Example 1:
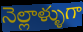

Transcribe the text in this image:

నెల్లాళ్ళుగా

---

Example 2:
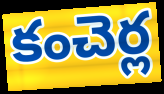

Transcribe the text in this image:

కంచెర్ల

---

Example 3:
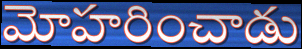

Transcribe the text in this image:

మోహరించాడు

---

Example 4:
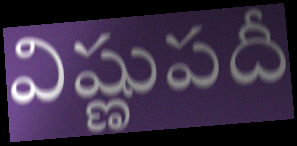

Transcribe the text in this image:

విష్ణుపదీ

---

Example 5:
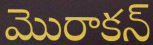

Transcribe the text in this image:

మొరాకన్